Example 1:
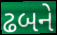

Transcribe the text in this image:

ઢબને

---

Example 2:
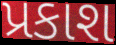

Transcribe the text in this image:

પ્રકાશ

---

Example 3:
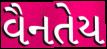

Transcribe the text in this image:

વૈનતેય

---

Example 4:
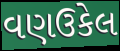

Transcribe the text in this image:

વણઉકેલ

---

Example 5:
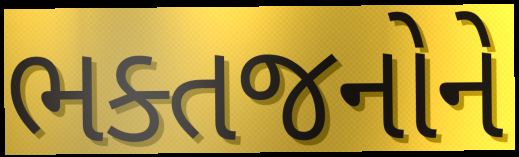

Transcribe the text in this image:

ભક્તજનોને